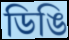
ডিঙি